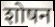
शोषन